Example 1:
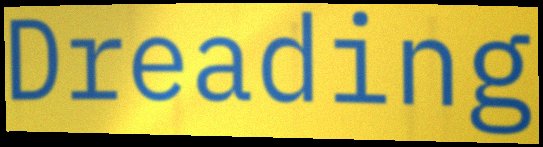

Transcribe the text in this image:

Dreading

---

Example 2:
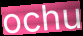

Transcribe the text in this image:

ochu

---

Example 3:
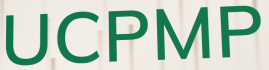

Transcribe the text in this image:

UCPMP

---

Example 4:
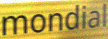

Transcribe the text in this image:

mondial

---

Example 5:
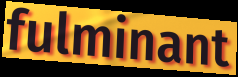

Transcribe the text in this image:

fulminant